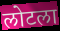
लोटला